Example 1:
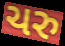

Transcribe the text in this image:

ચરુ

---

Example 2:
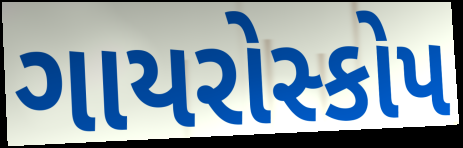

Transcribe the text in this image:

ગાયરોસ્કોપ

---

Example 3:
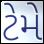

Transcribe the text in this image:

ટેમે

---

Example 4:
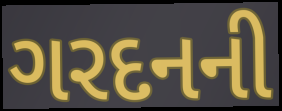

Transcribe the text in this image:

ગરદનની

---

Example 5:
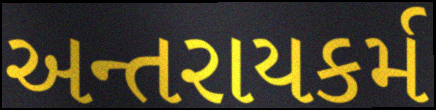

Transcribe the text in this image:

અન્તરાયકર્મ